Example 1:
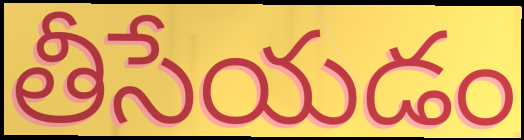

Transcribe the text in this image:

తీసేయడం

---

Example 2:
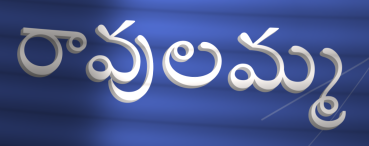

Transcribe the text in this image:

రావులమ్మ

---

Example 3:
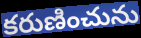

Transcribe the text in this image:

కరుణించును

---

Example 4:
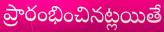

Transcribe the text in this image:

ప్రారంభించినట్లయితే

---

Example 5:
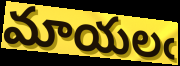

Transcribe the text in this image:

మాయలఁ